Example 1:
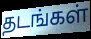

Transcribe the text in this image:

தடங்கள்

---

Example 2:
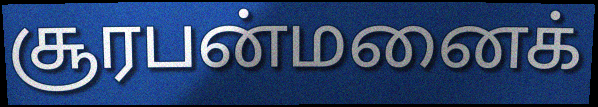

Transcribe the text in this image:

சூரபன்மனைக்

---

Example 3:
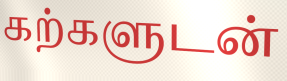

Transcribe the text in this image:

கற்களுடன்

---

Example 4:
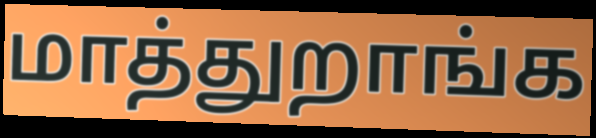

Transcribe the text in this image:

மாத்துறாங்க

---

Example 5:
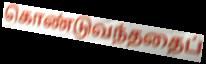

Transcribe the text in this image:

கொண்டுவந்ததைப்